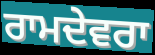
ਰਾਮਦੇਵਰਾ